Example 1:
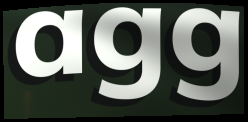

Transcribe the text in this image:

agg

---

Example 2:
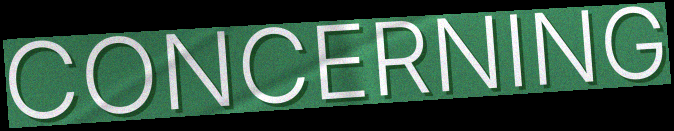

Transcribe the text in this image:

CONCERNING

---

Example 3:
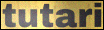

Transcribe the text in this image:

tutari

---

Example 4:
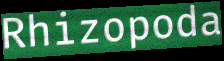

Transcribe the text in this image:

Rhizopoda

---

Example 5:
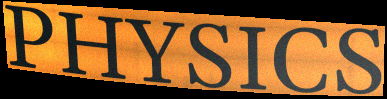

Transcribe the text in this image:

PHYSICS